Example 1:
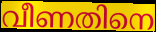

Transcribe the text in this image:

വീണതിനെ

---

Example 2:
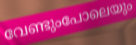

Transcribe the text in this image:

വേണ്ടുംപോലെയും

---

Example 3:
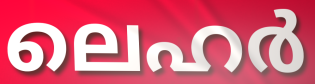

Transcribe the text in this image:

ലെഹർ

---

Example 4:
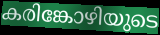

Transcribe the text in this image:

കരിങ്കോഴിയുടെ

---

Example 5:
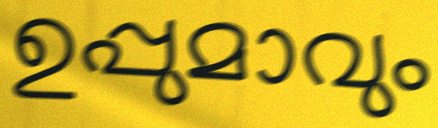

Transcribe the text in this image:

ഉപ്പുമാവും